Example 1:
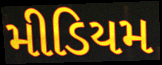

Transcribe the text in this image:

મીડિયમ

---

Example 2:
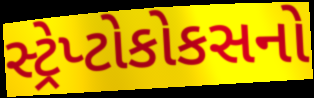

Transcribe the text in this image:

સ્ટ્રેપ્ટોકોકસનો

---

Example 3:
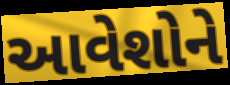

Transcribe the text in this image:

આવેશોને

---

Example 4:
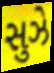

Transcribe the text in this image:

સુઝે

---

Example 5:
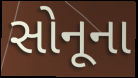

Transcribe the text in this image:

સોનૂના